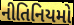
નીતિનિયમો